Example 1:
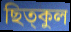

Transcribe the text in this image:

ছিত্কুল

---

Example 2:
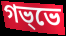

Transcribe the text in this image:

গভ্ভে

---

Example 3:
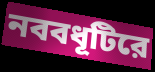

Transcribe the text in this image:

নববধূটিরে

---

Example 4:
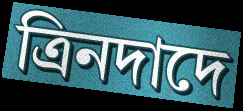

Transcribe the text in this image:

ত্রিনদাদে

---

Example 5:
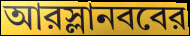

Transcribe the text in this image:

আরস্লানববের